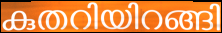
കുതറിയിറങ്ങി